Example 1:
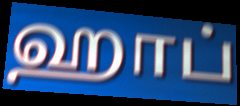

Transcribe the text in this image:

ஹாப்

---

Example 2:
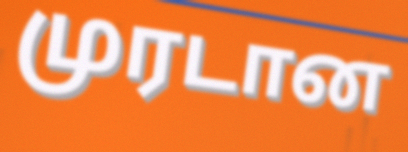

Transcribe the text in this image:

முரடான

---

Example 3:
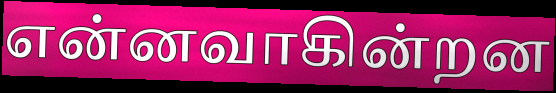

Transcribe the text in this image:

என்னவாகின்றன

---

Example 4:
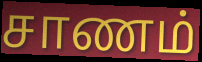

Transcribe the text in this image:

சாணம்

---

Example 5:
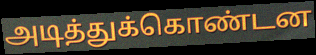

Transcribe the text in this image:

அடித்துக்கொண்டன